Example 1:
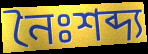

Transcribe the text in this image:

নৈঃশব্দ্য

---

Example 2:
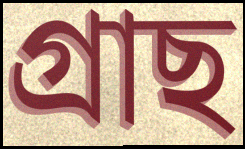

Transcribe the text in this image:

গ্ৰাছ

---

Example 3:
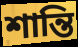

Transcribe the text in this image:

শান্তি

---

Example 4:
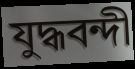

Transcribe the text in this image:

যুদ্ধবন্দী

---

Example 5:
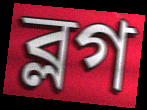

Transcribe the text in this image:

ব্লগ